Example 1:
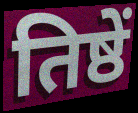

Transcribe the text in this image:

तिष्ठें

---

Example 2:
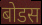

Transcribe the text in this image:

बोडस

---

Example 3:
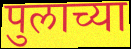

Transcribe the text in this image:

पुलाच्या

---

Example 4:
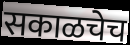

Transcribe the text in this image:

सकाळचेच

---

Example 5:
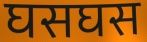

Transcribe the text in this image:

घसघस